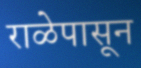
राळेपासून